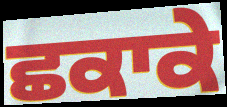
ਛਕਾਕੇ